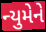
ન્યુમેને